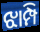
ଝାମ୍ପି